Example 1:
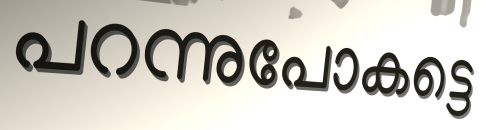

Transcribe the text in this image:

പറന്നുപോകട്ടെ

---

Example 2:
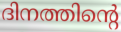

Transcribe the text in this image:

ദിനത്തിന്റെ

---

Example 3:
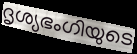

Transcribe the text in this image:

ദൃശ്യഭംഗിയുടെ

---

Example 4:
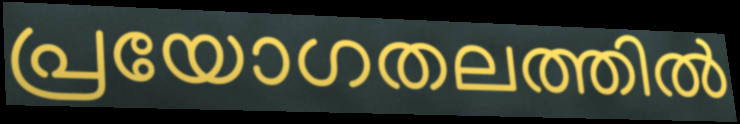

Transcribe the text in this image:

പ്രയോഗതലത്തിൽ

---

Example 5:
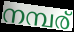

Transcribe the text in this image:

നമ്പര്